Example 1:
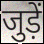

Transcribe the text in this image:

जुड़ें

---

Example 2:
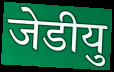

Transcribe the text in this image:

जेडीयु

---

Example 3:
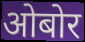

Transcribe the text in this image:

ओबोर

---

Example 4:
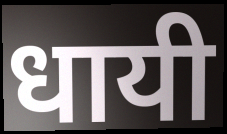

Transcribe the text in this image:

धायी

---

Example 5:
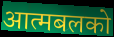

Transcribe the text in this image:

आत्मबलको